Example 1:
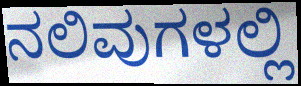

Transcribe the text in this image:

ನಲಿವುಗಳಲ್ಲಿ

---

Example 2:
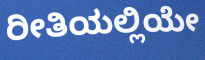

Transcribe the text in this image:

ರೀತಿಯಲ್ಲಿಯೇ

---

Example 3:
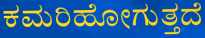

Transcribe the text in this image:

ಕಮರಿಹೋಗುತ್ತದೆ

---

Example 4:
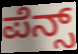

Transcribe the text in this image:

ಪೆನ್ಸ್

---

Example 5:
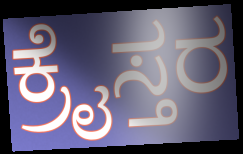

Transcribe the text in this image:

ಕ್ರೈಸ್ತರ